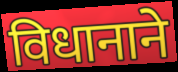
विधानाने